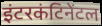
इंटरकंटिनेंटल